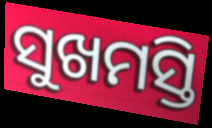
ସୁଖମସ୍ତି